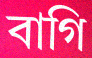
বাগি